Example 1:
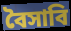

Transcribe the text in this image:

বৈসাবি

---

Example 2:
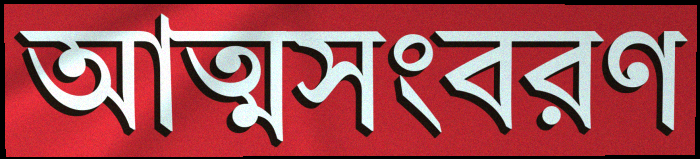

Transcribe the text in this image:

আত্মসংবরণ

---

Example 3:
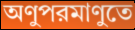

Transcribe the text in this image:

অণুপরমাণুতে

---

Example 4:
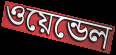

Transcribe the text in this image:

ওয়েন্ডেল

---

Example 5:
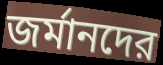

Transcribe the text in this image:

জর্মানদের